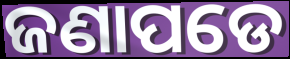
ଜଣାପଡେ